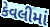
કેવલીમાં